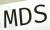
MDS